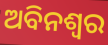
ଅବିନଶ୍ଵର